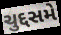
ચુદ્દસમે